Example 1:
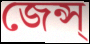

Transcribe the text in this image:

জেন্স্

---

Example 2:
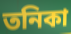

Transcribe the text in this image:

তনিকা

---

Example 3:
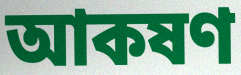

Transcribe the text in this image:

আকষণ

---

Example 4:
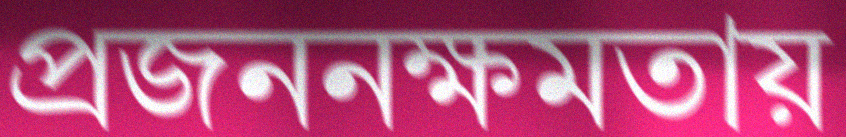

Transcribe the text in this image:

প্রজননক্ষমতায়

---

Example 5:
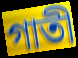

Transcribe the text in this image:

গাতী